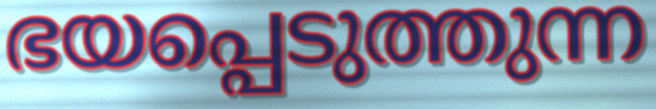
ഭയപ്പെടുത്തുന്ന